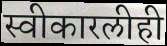
स्वीकारलीही